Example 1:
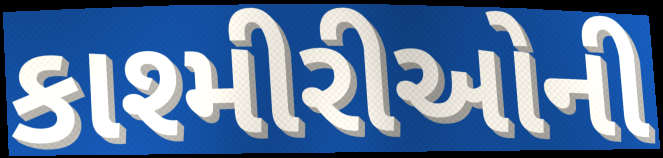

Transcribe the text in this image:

કાશ્મીરીઓની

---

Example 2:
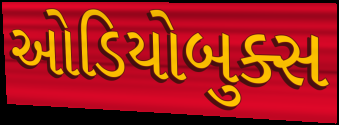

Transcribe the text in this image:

ઓડિયોબુક્સ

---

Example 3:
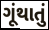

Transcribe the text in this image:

ગૂંથાતું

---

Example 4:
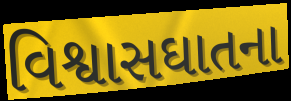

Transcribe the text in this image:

વિશ્વાસઘાતના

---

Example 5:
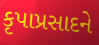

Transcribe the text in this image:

કૃપાપ્રસાદને